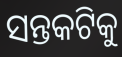
ସନ୍ତକଟିକୁ